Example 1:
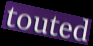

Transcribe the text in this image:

touted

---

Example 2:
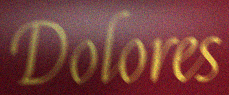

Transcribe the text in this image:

Dolores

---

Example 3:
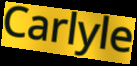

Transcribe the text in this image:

Carlyle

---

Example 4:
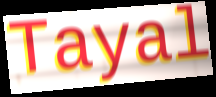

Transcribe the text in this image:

Tayal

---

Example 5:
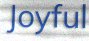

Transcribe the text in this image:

Joyful